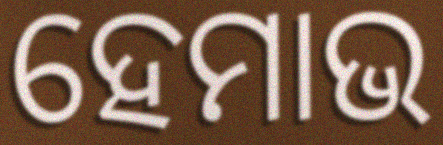
ହେମାଭ